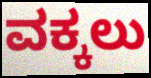
ವಕ್ಕಲು